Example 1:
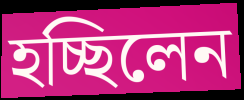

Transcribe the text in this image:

হচ্ছিলেন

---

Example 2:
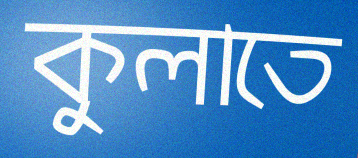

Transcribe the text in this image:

কুলাতে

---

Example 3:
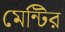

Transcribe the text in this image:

মেন্টির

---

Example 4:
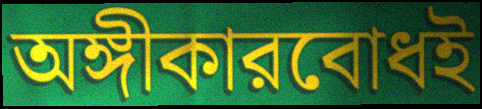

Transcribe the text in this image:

অঙ্গীকারবোধই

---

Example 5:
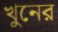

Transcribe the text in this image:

খুনের